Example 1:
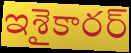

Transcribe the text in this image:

ఇశైకారర్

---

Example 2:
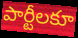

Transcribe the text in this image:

పార్టీలకూ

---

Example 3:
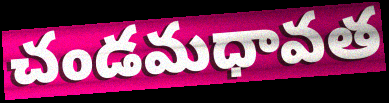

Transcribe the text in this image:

చండమధావత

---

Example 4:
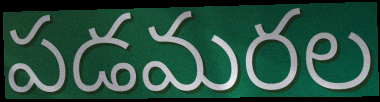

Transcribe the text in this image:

పడమరల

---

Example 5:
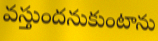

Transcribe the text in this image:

వస్తుందనుకుంటాను